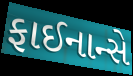
ફાઈનાન્સે